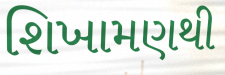
શિખામણથી